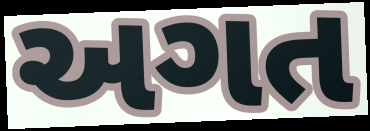
અગત